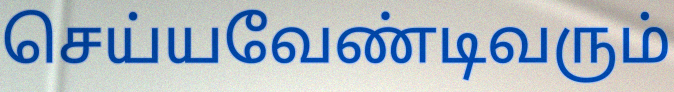
செய்யவேண்டிவரும்